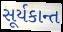
સૂર્યકાન્ત